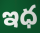
ఇధ